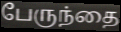
பேருந்தை